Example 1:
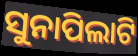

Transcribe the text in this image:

ସୁନାପିଲାଟି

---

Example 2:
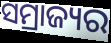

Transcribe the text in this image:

ସମ୍ରାଜ୍ୟର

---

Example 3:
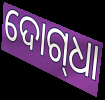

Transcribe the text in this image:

ଦୋଗ୍‌ଧା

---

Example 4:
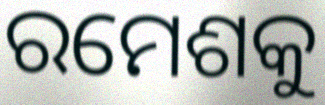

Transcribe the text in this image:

ରମେଶକୁ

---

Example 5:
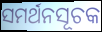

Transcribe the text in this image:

ସମର୍ଥନସୂଚକ